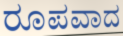
ರೂಪವಾದ